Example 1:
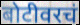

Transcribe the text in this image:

बोटीवरचं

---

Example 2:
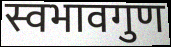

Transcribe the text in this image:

स्वभावगुण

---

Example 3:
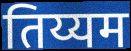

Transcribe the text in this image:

तिय्यम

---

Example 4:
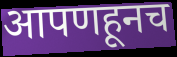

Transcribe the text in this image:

आपणहूनच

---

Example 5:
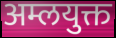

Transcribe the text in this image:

अम्लयुक्त